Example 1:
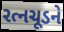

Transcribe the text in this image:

રત્નચૂડને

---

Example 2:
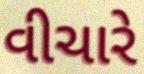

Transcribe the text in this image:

વીચારે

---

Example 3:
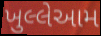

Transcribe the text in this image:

ખુલ્લેઆમ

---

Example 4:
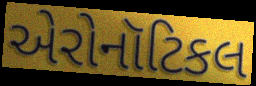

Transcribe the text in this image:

એરોનૉટિકલ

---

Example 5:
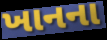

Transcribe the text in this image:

ખાનના